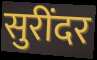
सुरींदर